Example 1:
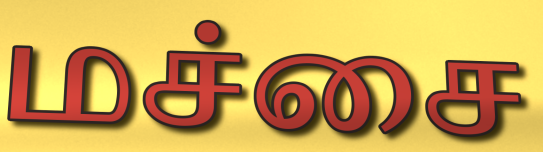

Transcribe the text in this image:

மச்சை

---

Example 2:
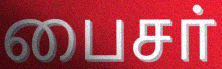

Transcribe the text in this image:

பைசர்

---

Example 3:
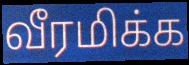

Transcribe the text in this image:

வீரமிக்க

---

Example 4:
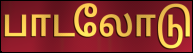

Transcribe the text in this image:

பாடலோடு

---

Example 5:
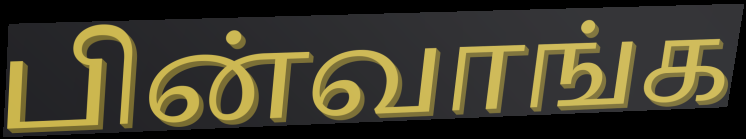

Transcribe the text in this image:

பின்வாங்க